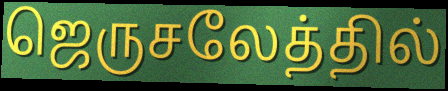
ஜெருசலேத்தில்